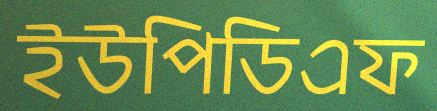
ইউপিডিএফ